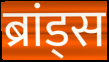
ब्रांड्स